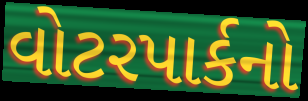
વોટરપાર્કનો